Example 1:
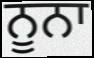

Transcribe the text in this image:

ਨੂਨਾ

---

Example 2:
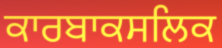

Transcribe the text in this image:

ਕਾਰਬਾਕਸਲਿਕ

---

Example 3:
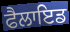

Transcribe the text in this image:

ਫੈਲਾਇਡ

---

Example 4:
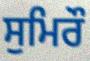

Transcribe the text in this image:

ਸੁਮਿਰੌ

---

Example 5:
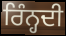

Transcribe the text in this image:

ਰਿੰਨ੍ਹਦੀ